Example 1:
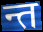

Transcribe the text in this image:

न्त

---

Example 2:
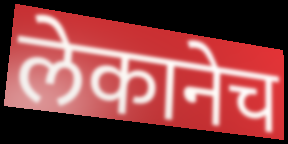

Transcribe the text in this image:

लेकानेच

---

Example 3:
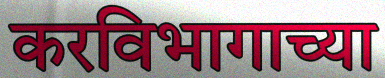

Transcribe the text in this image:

करविभागाच्या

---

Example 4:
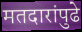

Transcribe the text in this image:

मतदारांपुढे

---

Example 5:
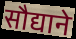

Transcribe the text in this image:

सौद्याने